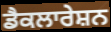
ਡੈਕਲਾਰੇਸ਼ਨ